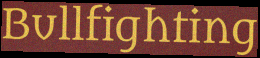
Bullfighting